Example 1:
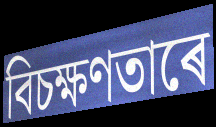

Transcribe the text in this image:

বিচক্ষণতাৰে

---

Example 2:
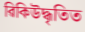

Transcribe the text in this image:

ৱিকিউদ্ধৃতিত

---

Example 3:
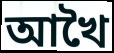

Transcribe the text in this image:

আখৈ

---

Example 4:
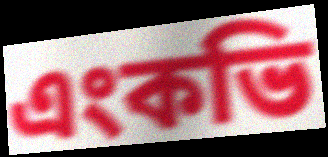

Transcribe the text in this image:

এংকভি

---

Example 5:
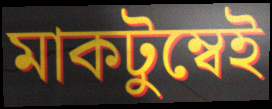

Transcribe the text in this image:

মাকটুম্বেই